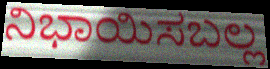
ನಿಭಾಯಿಸಬಲ್ಲ